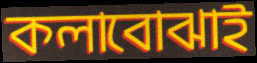
কলাবোঝাই